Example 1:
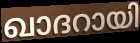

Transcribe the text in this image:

ഖാദറായി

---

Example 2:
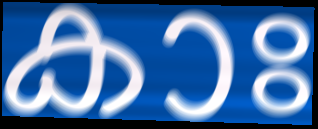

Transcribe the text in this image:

കാഃ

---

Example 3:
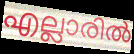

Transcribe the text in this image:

എല്ലാരിൽ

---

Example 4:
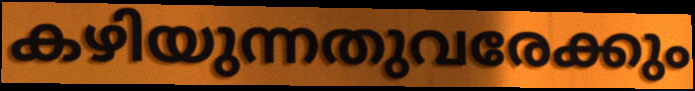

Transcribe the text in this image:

കഴിയുന്നതുവരേക്കും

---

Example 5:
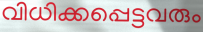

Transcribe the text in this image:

വിധിക്കപ്പെട്ടവരും